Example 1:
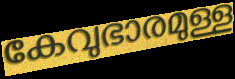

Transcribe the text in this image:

കേവുഭാരമുള്ള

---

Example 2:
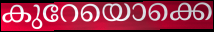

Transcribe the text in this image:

കുറേയൊക്കെ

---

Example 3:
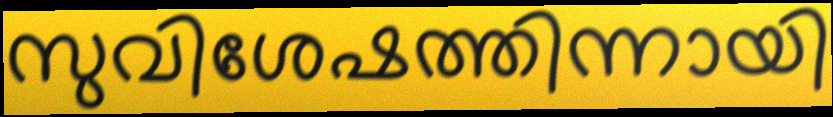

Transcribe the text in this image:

സുവിശേഷത്തിന്നായി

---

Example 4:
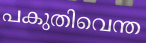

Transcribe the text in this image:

പകുതിവെന്ത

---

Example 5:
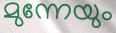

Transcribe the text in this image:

മുന്നേയും